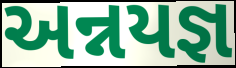
અન્નયજ્ઞ